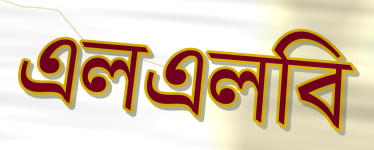
এলএলবি